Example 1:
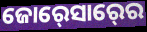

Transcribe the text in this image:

ଜୋର୍‍ସୋର୍‍ରେ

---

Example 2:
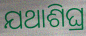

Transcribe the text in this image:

ଯଥାଶିଘ୍ର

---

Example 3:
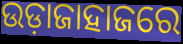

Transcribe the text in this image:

ଉଡ଼ାଜାହାଜରେ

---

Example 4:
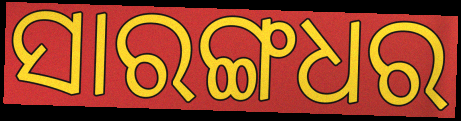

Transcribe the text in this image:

ସାରଙ୍ଗଧର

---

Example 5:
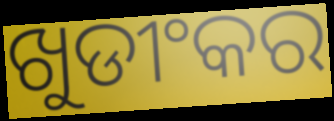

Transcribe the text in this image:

ଖୁଡୀଂକର